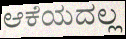
ಆಕೆಯದಲ್ಲ